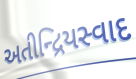
અતીન્દ્રિયસ્વાદ